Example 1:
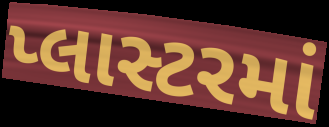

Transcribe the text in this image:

પ્લાસ્ટરમાં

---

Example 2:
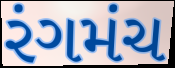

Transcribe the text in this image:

રંગમંચ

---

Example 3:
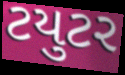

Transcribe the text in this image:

ટયુટર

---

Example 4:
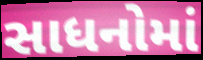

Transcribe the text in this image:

સાધનોમાં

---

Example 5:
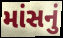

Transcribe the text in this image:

માંસનું